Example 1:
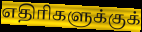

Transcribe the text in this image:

எதிரிகளுக்குக்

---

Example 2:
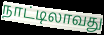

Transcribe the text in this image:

நாட்டிலாவது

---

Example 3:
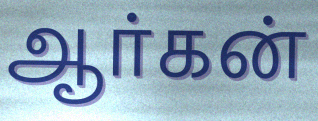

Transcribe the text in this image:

ஆர்கன்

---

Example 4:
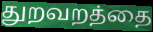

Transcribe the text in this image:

துறவறத்தை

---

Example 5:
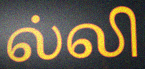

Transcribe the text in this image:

ல்லி